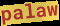
palaw